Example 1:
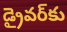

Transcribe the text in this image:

డ్రైవర్‌కు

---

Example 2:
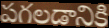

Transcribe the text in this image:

పగలడానికి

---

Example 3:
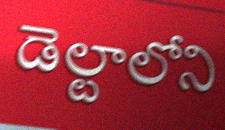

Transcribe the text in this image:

డెల్టాలోని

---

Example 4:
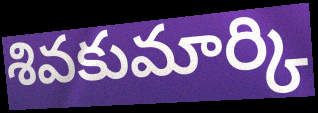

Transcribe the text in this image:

శివకుమార్కి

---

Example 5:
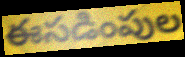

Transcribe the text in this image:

ఈసడింపుల